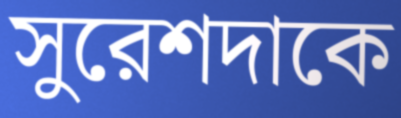
সুরেশদাকে